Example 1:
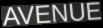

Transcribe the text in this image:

AVENUE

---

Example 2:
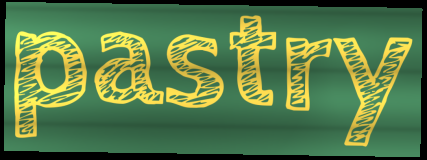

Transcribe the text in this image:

pastry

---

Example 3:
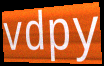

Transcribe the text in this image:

vdpy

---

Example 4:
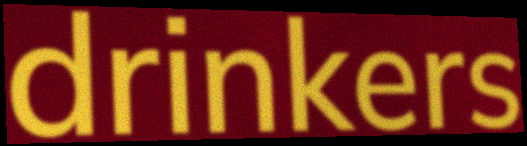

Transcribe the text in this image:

drinkers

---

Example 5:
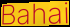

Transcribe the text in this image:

Bahai